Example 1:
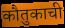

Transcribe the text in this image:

कौतुकाची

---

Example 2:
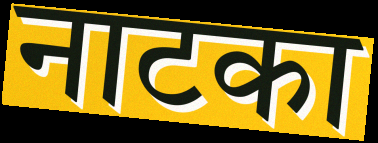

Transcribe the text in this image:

नाटका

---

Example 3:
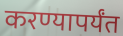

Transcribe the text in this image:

करण्यापर्यंत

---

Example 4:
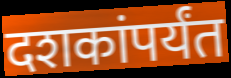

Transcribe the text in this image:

दशकांपर्यंत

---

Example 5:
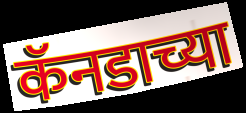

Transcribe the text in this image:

कॅनडाच्या